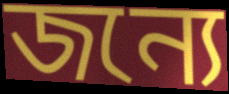
জন্যে